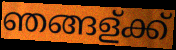
ഞങ്ങള്ക്ക്